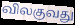
விலகுவது